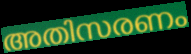
അതിസരണം